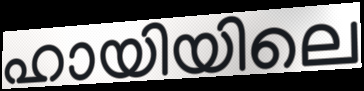
ഹായിയിലെ